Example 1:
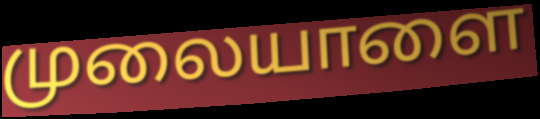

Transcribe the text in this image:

முலையாளை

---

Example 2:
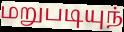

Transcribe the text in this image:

மறுபடியுந்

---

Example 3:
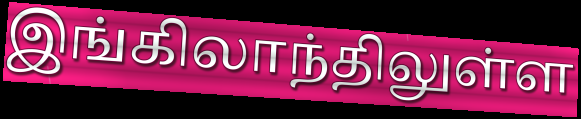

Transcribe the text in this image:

இங்கிலாந்திலுள்ள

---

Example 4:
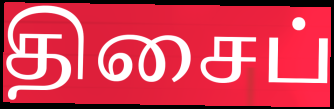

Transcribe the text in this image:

திசைப்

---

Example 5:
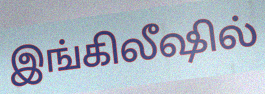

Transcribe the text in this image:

இங்கிலீஷில்